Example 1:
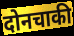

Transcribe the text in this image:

दोनचाकी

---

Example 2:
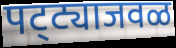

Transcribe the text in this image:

पट्ट्याजवळ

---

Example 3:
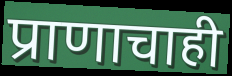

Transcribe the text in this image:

प्राणाचाही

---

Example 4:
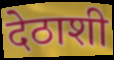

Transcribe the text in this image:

देठाशी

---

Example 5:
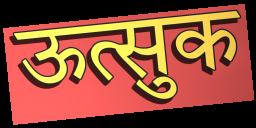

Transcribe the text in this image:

ऊत्सुक